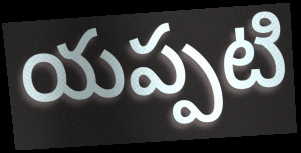
యప్పటి